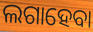
ଲଗାହେବା